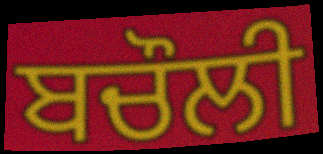
ਬਚੌਲੀ